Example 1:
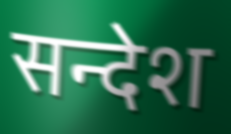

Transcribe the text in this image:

सन्देश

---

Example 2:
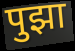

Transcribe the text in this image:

पुझा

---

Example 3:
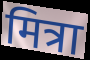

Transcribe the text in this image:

मित्रा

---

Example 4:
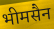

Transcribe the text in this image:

भीमसैन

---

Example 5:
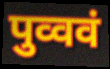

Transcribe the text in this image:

पुव्ववं